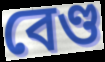
বেণ্ড